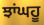
ਝਾਂਘਹੂ